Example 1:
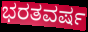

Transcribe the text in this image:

ಭರತವರ್ಷ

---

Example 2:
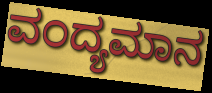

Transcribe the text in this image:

ವಂದ್ಯಮಾನ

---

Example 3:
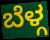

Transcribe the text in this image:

ಬೆಳ್ಗ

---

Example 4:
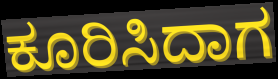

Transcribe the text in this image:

ಕೂರಿಸಿದಾಗ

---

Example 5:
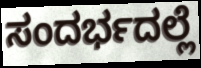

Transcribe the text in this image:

ಸಂದರ್ಭದಲ್ಲೆ